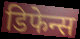
डिफेन्स